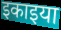
इकाइया